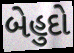
બેહુદો